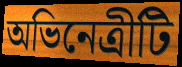
অভিনেত্রীটি